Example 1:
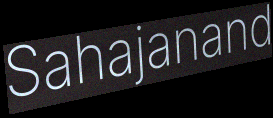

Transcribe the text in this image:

Sahajanand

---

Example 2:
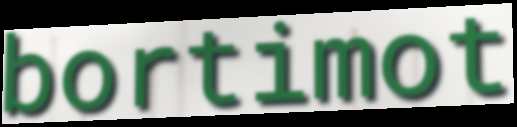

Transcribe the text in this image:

bortimot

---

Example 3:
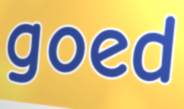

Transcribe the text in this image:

goed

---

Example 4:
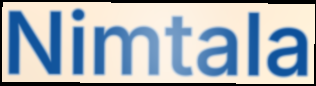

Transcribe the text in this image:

Nimtala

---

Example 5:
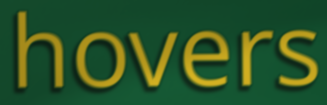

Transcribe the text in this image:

hovers